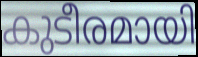
കുടീരമായി